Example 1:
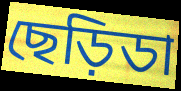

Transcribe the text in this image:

ছেড়িডা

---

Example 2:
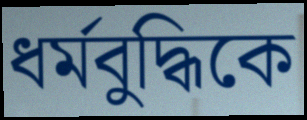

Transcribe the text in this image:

ধর্মবুদ্ধিকে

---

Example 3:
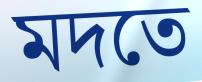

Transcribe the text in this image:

মদতে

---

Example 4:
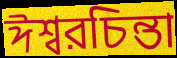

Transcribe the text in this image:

ঈশ্বরচিন্তা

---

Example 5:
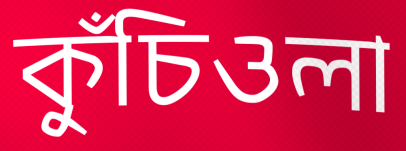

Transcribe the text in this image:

কুঁচিওলা